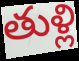
తుళ్లి